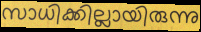
സാധിക്കില്ലായിരുന്നു